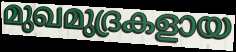
മുഖമുദ്രകളായ